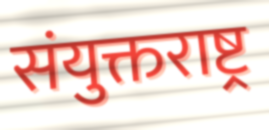
संयुक्तराष्ट्र